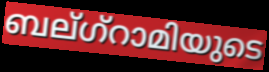
ബല്ഗ്റാമിയുടെ